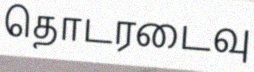
தொடரடைவு